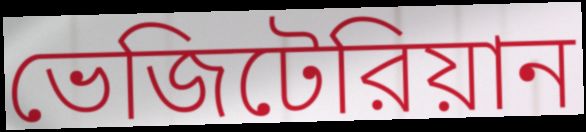
ভেজিটেরিয়ান